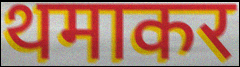
थमाकर